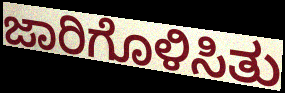
ಜಾರಿಗೊಳಿಸಿತು